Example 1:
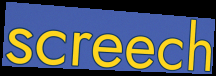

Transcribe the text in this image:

screech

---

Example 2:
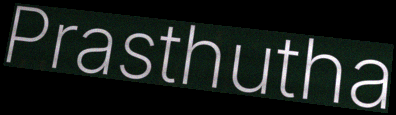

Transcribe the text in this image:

Prasthutha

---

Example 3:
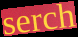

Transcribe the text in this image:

serch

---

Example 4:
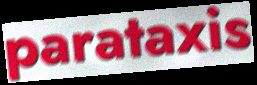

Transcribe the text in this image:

parataxis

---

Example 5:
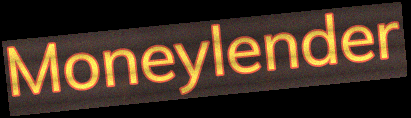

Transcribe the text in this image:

Moneylender